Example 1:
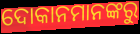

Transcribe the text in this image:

ଦୋକାନମାନଙ୍କରୁ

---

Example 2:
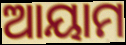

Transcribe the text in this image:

ଆୟାମ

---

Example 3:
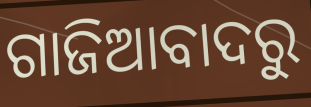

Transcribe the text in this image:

ଗାଜିଆବାଦରୁ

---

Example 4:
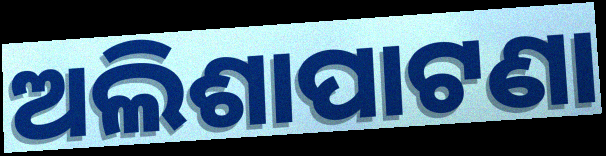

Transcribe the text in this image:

ଅଲିଶାପାଟଣା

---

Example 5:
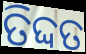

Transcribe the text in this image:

ତିଦ୍ଦତ